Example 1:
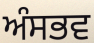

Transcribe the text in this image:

ਅੰਸਭਵ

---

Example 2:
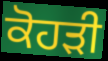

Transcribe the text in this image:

ਕੋਹੜੀ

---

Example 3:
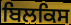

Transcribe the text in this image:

ਬਿਲਕਿਸ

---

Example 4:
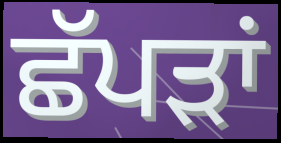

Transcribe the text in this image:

ਛੱਪੜਾਂ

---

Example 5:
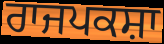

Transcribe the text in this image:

ਰਾਜਪਕਸ਼ਾ